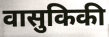
वासुकिकी